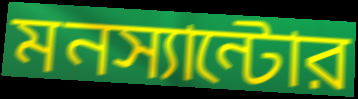
মনস্যান্টোর